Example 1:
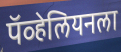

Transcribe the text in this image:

पॅव्हेलियनला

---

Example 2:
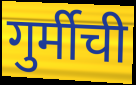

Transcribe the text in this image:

गुर्मीची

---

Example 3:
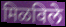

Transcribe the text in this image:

मिळविले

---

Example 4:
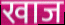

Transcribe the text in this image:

खाज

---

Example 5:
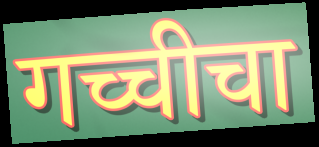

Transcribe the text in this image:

गच्चीचा